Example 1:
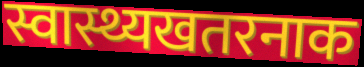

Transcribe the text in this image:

स्वास्थ्यखतरनाक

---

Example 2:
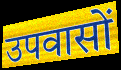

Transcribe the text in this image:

उपवासों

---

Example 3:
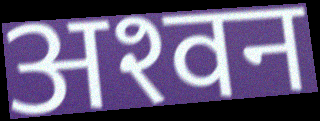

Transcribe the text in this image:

अश्वन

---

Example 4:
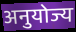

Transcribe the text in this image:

अनुयोज्य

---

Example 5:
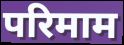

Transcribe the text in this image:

परिमाम